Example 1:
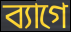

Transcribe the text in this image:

ব্যাগে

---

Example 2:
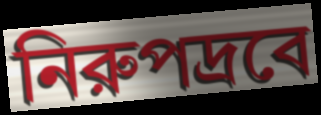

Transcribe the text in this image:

নিরুপদ্রবে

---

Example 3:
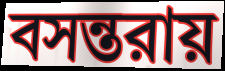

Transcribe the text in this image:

বসন্তরায়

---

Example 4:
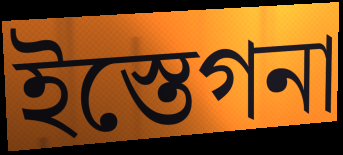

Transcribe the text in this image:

ইস্তেগনা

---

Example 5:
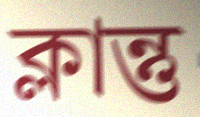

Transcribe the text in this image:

ক্লান্তু